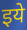
इये